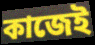
কাজেই